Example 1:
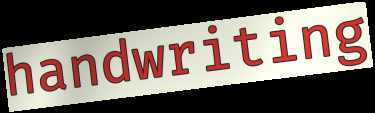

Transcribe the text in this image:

handwriting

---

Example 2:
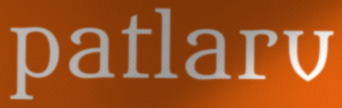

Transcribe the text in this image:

patlaru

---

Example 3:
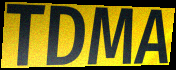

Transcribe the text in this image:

TDMA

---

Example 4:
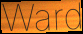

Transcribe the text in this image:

Ward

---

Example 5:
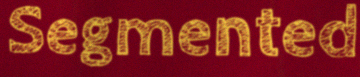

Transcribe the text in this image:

Segmented